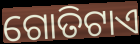
ଗୋତିଟାଏ